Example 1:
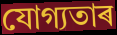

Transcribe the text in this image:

যোগ্যতাৰ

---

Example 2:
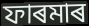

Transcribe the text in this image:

ফাৰমাৰ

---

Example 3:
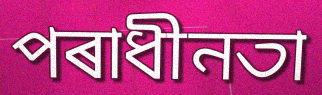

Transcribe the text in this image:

পৰাধীনতা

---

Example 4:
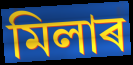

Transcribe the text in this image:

মিলাৰ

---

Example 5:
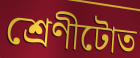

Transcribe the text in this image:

শ্ৰেণীটোত